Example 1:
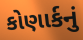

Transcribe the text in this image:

કોણાર્કનું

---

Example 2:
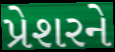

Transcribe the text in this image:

પ્રેશરને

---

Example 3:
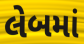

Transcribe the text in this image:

લેબમાં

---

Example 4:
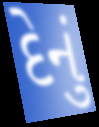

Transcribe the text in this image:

દેનું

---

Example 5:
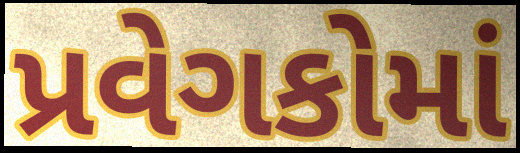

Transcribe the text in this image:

પ્રવેગકોમાં